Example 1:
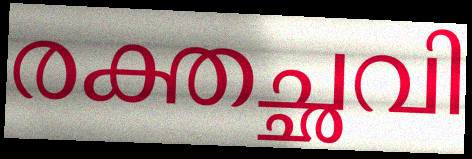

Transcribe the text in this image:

രക്തച്ഛവി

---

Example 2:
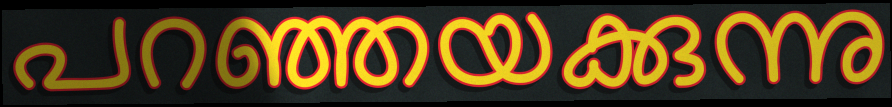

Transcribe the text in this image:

പറഞ്ഞയക്കുന്നു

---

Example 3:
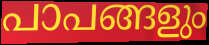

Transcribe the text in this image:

പാപങ്ങളും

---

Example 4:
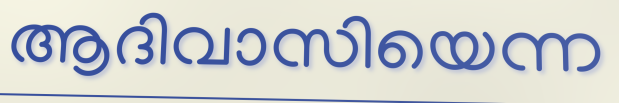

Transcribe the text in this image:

ആദിവാസിയെന്ന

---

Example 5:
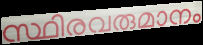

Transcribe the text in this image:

സ്ഥിരവരുമാനം